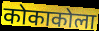
कोकाकोला